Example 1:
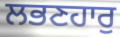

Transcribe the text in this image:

ਲਭਣਹਾਰੁ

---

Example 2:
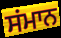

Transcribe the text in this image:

ਸਂਮਾਨ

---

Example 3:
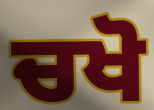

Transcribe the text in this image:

ਚਖੋ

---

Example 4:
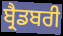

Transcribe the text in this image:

ਬ੍ਰੈਡਬਰੀ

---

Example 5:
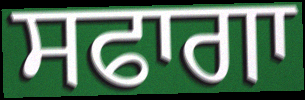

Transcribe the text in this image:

ਸਫਾਗਾ